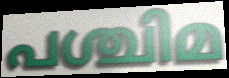
പശ്ചിമ